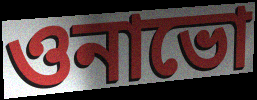
ওনাভো